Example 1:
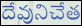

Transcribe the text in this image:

దేవునిచేత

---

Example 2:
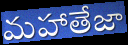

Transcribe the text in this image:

మహాతేజా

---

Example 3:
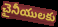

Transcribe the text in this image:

చైనీయులకు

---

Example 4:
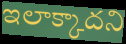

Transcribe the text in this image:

ఇలాక్కాదని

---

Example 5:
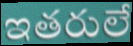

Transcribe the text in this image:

ఇతరులే